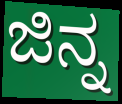
ಜಿನ್ನ